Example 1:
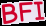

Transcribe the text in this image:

BFI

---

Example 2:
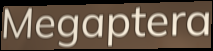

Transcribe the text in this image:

Megaptera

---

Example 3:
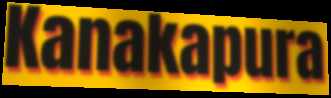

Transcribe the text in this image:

Kanakapura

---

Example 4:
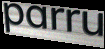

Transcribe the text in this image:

parru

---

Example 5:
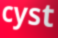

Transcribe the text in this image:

cyst